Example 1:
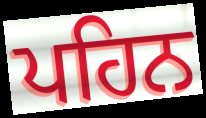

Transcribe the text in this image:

ਪਹਿਨ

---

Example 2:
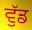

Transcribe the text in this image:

ਵੁੱਡ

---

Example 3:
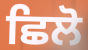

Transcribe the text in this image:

ਛਿਲੋ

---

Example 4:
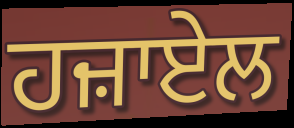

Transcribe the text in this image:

ਹਜ਼ਾਏਲ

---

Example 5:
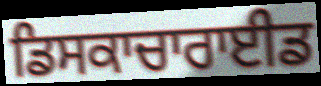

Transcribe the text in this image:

ਡਿਸਕਾਚਾਰਾਈਡ